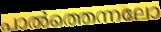
പാൽത്തെന്നലോ